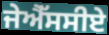
ਜੇਐੱਸਸੀਏ